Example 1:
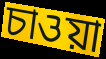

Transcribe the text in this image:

চাওয়া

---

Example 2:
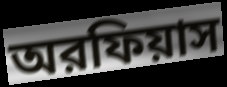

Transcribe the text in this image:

অরফিয়াস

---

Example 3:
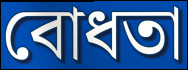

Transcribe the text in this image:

বোধতা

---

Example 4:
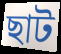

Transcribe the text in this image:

ছাট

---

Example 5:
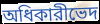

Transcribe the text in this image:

অধিকারীভেদ